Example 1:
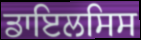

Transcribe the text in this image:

ਡਾਇਲਸਿਸ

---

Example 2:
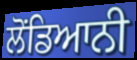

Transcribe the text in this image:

ਲੋਂਡਿਆਨੀ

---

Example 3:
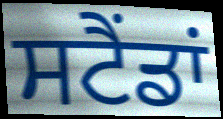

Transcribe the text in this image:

ਸਟੈਂਡਾਂ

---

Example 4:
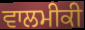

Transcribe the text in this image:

ਵਾਲਮੀਕੀ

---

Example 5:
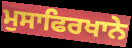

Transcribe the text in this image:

ਮੁਸਾਫਿਰਖਾਨੇ